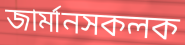
জাৰ্মানসকলক